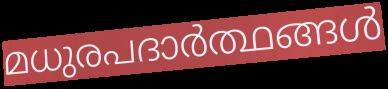
മധുരപദാർത്ഥങ്ങൾ